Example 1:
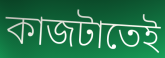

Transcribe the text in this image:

কাজটাতেই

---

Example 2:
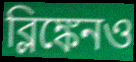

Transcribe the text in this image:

ব্লিঙ্কেনও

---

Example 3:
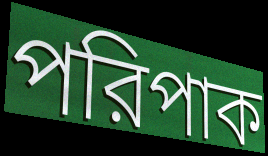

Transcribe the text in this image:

পরিপাক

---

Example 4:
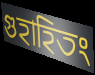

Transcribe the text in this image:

গুহাহিতং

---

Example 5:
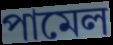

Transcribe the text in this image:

পামেল